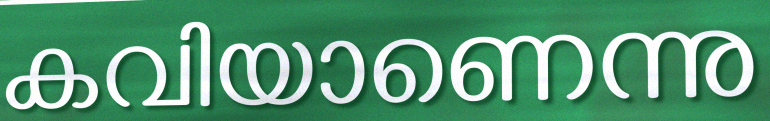
കവിയാണെന്നു